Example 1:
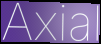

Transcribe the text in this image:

Axial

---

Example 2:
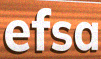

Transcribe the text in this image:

efsa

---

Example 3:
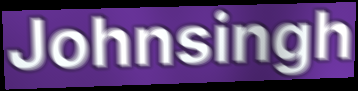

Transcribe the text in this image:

Johnsingh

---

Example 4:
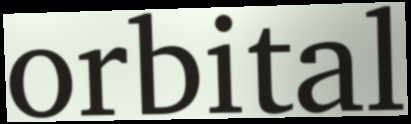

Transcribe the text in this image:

orbital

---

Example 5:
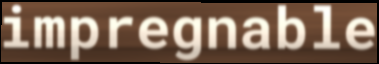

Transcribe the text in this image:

impregnable